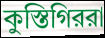
কুস্তিগিররা